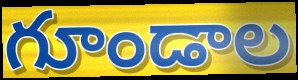
గూండాల